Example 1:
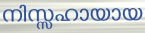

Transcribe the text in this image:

നിസ്സഹായായ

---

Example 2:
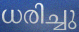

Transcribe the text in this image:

ധരിച്ചു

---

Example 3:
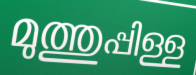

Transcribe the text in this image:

മുത്തുപ്പിള്ള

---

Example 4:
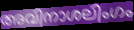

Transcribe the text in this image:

അവിനാശലിംഗം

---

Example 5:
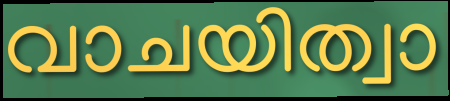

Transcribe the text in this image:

വാചയിത്വാ